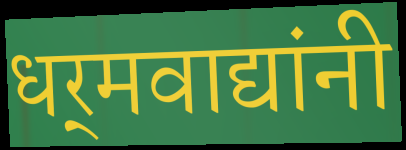
धर्मवाद्यांनी